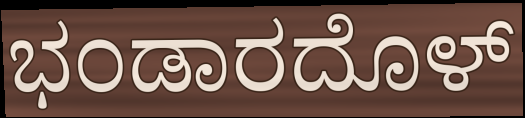
ಭಂಡಾರದೊಳ್